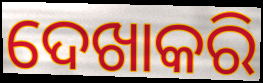
ଦେଖାକରି